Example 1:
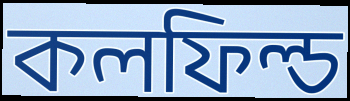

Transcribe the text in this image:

কলফিল্ড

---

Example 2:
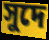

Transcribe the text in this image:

সুদে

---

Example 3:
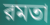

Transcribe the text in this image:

রমতা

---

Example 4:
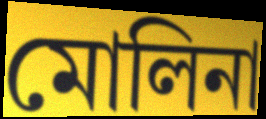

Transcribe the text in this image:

মোলিনা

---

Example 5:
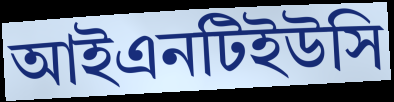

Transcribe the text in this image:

আইএনটিইউসি